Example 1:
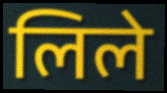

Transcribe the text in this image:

लिले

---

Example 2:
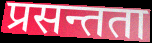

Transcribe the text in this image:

प्रसन्तता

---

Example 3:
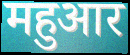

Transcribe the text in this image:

महुआर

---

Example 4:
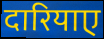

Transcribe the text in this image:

दारियाए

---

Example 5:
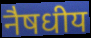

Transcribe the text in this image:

नैषधीय